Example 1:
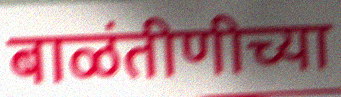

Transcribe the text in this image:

बाळंतीणीच्या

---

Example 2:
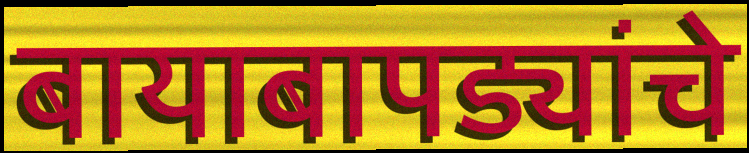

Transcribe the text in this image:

बायाबापड्यांचे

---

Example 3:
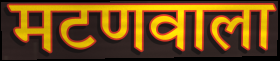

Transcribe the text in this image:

मटणवाला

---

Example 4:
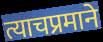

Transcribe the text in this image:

त्याचप्रमाने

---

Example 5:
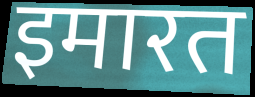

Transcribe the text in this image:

इमारत